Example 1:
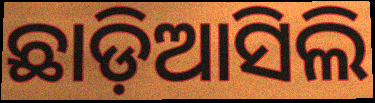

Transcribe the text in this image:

ଛାଡ଼ିଆସିଲି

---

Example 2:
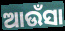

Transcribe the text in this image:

ଆଉଁସା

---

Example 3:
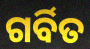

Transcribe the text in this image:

ଗର୍ବିତ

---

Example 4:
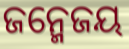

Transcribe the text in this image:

ଜନ୍ମେଜୟ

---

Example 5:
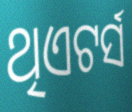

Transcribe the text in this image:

ଥିଏଟର୍ସ